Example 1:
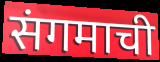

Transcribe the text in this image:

संगमाची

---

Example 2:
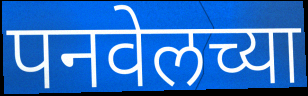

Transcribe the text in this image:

पनवेलच्या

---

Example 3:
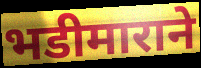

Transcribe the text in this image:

भडीमाराने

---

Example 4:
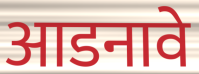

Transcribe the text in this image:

आडनावे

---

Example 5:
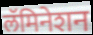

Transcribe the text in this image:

लॅमिनेशन